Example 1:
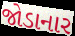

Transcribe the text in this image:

જોડાનાર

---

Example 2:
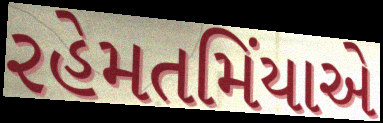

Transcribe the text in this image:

રહેમતમિંયાએ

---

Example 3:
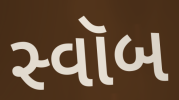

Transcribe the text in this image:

સ્વૉબ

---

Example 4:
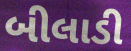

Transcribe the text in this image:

બીલાડી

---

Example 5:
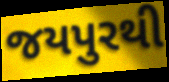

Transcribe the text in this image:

જયપુરથી